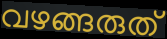
വഴങ്ങരുത്